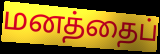
மனத்தைப்